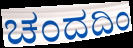
ಚಂದದಿಂ